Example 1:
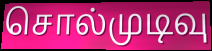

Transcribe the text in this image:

சொல்முடிவு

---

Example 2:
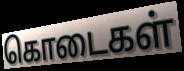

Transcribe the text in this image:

கொடைகள்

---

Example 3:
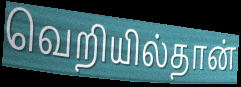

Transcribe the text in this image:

வெறியில்தான்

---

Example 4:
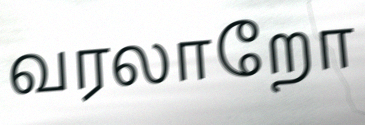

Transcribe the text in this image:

வரலாறோ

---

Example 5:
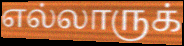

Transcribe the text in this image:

எல்லாருக்